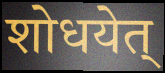
शोधयेत्